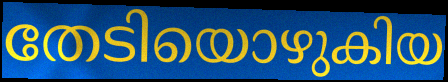
തേടിയൊഴുകിയ